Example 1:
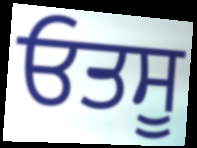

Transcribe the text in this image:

ਓਤਸੂ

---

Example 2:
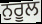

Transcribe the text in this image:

ਨੁਰੂਲ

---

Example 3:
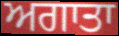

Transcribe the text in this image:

ਅਗਾਤਾ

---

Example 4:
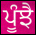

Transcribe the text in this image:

ਪੂੰਝੈ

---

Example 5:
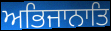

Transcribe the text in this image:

ਅਭਿਜਾਨਾਤਿ